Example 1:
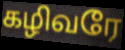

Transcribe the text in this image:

கழிவரே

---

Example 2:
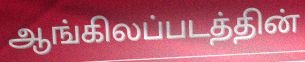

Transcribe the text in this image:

ஆங்கிலப்படத்தின்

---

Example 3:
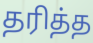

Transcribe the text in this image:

தரித்த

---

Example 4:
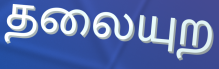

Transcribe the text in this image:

தலையுற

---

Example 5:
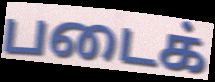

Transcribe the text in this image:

படைக்